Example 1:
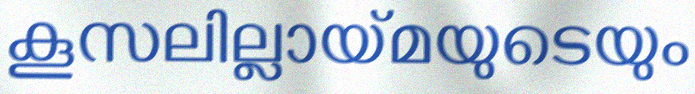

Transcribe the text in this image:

കൂസലില്ലായ്മയുടെയും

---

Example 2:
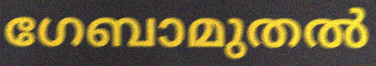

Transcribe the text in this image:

ഗേബാമുതൽ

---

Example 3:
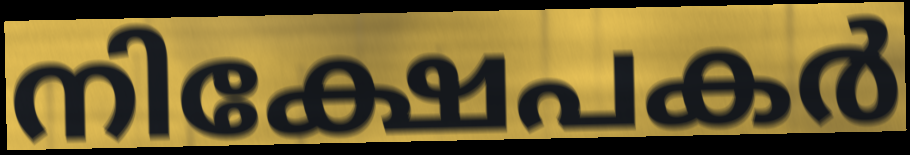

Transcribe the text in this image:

നിക്ഷേപകർ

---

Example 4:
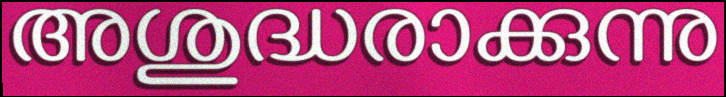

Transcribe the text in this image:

അശുദ്ധരാക്കുന്നു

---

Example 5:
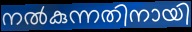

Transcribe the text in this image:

നൽകുന്നതിനായി